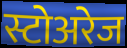
स्टोअरेज